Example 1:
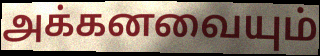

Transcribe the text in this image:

அக்கனவையும்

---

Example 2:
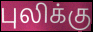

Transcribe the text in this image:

புலிக்கு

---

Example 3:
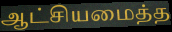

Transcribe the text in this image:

ஆட்சியமைத்த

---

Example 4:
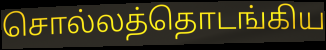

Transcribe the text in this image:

சொல்லத்தொடங்கிய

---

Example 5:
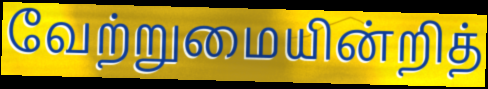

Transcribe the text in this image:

வேற்றுமையின்றித்